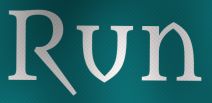
Run